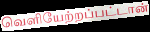
வெளியேற்றப்பட்டான்